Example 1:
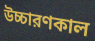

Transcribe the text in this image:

উচ্চারণকাল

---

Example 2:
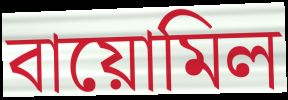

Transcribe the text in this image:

বায়োমিল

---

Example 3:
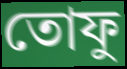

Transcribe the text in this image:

তোফু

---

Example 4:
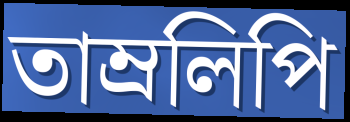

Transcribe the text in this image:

তাম্রলিপি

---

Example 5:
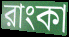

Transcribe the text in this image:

রাংকা